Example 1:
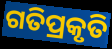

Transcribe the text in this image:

ଗତିପ୍ରକୃତି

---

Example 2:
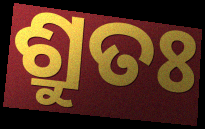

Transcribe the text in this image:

ଶ୍ରୁତଃ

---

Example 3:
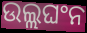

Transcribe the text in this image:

ଉଲ୍ଲଘଂନ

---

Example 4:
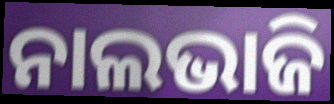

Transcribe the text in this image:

ନାଲଭାଜି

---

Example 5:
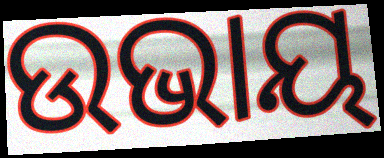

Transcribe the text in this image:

ଉଭାୟ